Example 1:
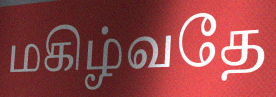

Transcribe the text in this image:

மகிழ்வதே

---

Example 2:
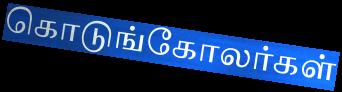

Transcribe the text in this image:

கொடுங்கோலர்கள்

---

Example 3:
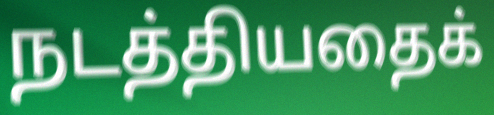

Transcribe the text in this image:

நடத்தியதைக்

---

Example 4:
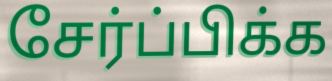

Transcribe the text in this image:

சேர்ப்பிக்க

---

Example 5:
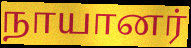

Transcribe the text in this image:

நாயானர்